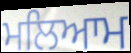
ਮਲਿਆਮ